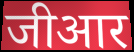
जीआर